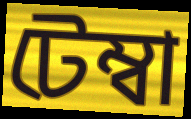
টেম্বা